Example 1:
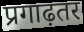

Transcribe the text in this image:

प्रगाढ़तर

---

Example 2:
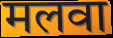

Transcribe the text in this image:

मलवा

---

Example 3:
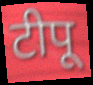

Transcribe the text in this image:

टीपू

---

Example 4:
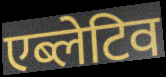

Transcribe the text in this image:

एब्लेटिव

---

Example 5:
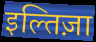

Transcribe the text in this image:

इल्तिज़ा